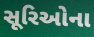
સૂરિઓના